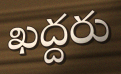
ఖద్దరు